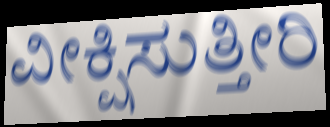
ವೀಕ್ಷಿಸುತ್ತೀರಿ